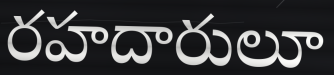
రహదారులూ